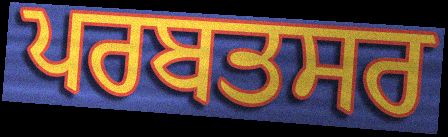
ਪਰਬਤਸਰ